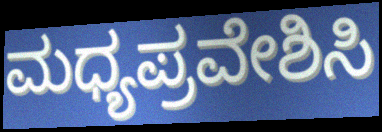
ಮಧ್ಯಪ್ರವೇಶಿಸಿ